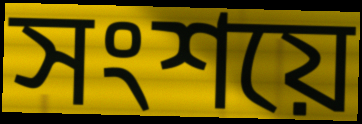
সংশয়ে